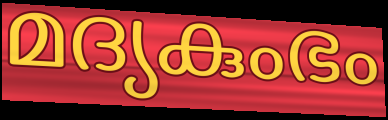
മദ്യകുംഭം